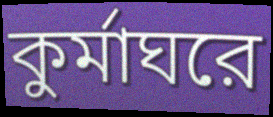
কুর্মাঘরে